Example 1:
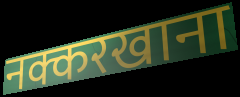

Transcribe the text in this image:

नक्करखाना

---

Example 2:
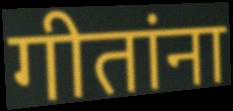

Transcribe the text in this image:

गीतांना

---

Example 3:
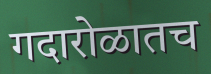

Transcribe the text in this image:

गदारोळातच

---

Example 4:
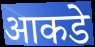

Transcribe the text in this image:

आकडे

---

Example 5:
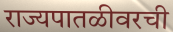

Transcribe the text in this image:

राज्यपातळीवरची